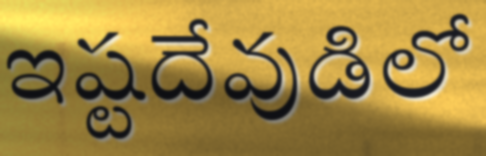
ఇష్టదేవుడిలో